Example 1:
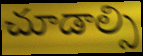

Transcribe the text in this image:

చూడాల్సి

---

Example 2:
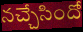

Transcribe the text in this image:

నచ్చేసిందో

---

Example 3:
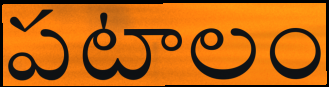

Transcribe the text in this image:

పటాలం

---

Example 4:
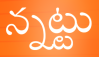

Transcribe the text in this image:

న్నట్టు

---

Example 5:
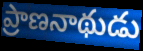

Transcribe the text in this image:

ప్రాణనాథుడు